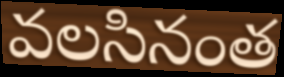
వలసినంత